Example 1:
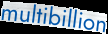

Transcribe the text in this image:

multibillion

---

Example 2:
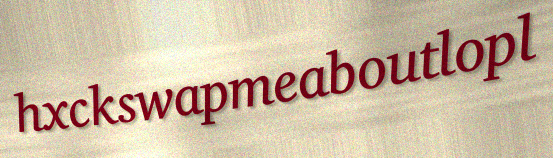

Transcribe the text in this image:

hxckswapmeaboutlopl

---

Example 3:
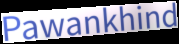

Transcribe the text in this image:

Pawankhind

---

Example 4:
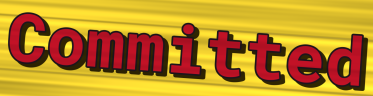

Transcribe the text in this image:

Committed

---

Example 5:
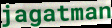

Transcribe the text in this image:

jagatman